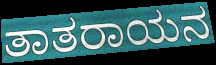
ತಾತರಾಯನ